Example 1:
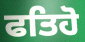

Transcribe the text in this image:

ਫਤਿਹੋ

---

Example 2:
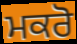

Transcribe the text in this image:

ਮਕਰੋ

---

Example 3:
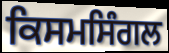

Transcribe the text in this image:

ਕਿਸਮਸਿੰਗਲ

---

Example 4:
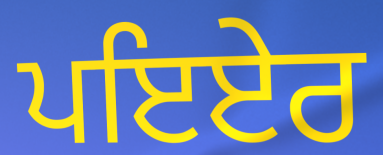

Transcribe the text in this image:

ਪਇਏਰ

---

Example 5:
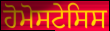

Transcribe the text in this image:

ਹੋਮੋਸਟੇਸਿਸ